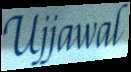
Ujjawal